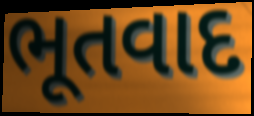
ભૂતવાદ